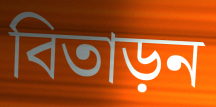
বিতাড়ন